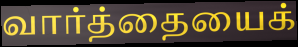
வார்த்தையைக்